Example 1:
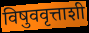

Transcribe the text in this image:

विषुववृत्ताशी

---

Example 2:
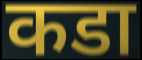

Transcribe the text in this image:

कडा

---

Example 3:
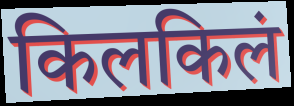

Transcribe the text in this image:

किलकिलं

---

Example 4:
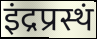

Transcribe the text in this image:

इंद्रप्रस्थं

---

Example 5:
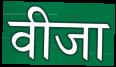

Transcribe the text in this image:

वीजा